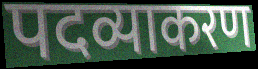
पदव्याकरण